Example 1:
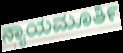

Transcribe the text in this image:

ನ್ಯಾಯಮೂರ್ತಿ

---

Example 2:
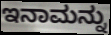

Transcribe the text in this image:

ಇನಾಮನ್ನು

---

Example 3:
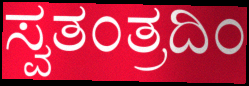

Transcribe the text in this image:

ಸ್ವತಂತ್ರದಿಂ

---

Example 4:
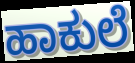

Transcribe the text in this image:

ಹಾಕುಲೆ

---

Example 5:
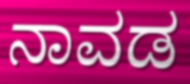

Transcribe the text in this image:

ನಾವಡ